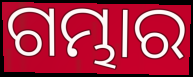
ଗମ୍ଭାର